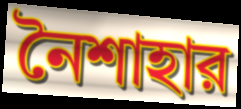
নৈশাহার